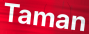
Taman